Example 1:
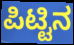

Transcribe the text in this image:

ಪಿಟ್ಟಿನ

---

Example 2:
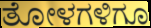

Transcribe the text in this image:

ತೋಳಗಳಿಗೂ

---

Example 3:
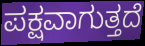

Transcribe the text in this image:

ಪಕ್ಷವಾಗುತ್ತದೆ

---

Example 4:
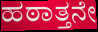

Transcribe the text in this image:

ಹಠಾತ್ತನೇ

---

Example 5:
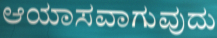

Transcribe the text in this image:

ಆಯಾಸವಾಗುವುದು